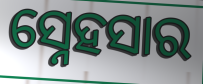
ସ୍ନେହସାର